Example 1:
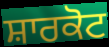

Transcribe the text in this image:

ਸ਼ਾਰਕੋਟ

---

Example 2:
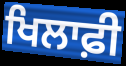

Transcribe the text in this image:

ਖਿਲਾਫ਼ੀ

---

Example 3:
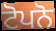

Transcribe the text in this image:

ਟੋਪਨੋ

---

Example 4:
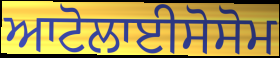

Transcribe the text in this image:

ਆਟੋਲਾਈਸੋਸੋਮ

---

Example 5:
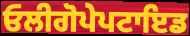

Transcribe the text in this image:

ਓਲੀਗੋਪੇਪਟਾਇਡ